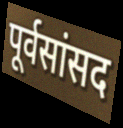
पूर्वसांसद